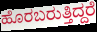
ಹೊರಬರುತ್ತಿದ್ದರೆ